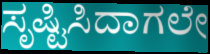
ಸೃಷ್ಟಿಸಿದಾಗಲೇ